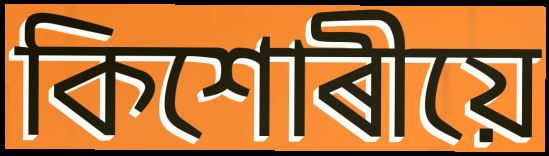
কিশোৰীয়ে